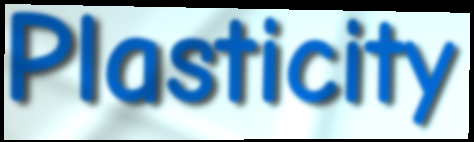
Plasticity